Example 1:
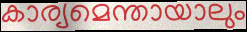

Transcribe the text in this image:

കാര്യമെന്തായാലും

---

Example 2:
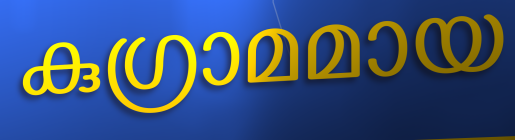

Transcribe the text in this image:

കുഗ്രാമമായ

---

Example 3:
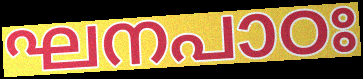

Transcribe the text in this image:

ഘനപാഠഃ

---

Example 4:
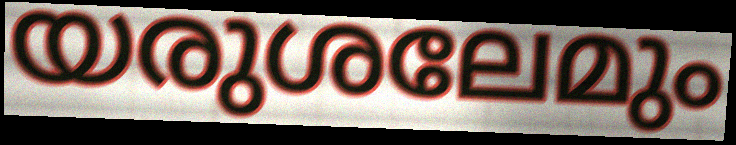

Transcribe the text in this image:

യരുശലേമും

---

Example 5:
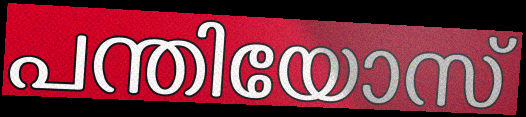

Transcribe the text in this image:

പന്തിയോസ്